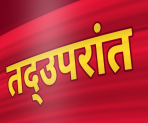
तद्उपरांत